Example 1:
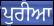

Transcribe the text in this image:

ਪੁਰੀਆ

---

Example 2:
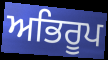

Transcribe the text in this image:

ਅਭਿਰੂਪ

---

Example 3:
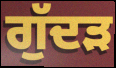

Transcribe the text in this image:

ਗੁੱਦੜ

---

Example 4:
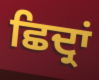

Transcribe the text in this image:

ਛਿਦ੍ਰਾਂ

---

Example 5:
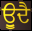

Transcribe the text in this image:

ਊੁਦੈ